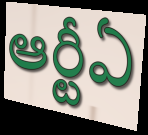
ఆర్టీఏ